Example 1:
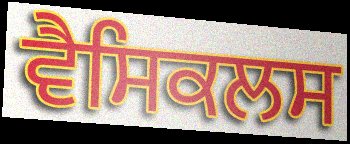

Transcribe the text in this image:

ਵੈਸਿਕਲਸ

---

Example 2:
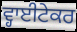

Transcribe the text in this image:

ਵ੍ਹਾਈਟੇਕਰ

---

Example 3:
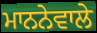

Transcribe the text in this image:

ਮਾਨਨੇਵਾਲੇ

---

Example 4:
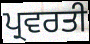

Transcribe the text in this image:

ਪ੍ਰਵਰਤੀ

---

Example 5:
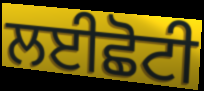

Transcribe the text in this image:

ਲਈਛੋਟੀ